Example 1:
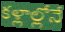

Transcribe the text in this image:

కళ్లాల్లోనే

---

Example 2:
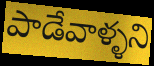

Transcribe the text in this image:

పాడేవాళ్ళని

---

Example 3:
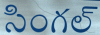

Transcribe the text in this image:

సింగల్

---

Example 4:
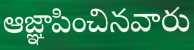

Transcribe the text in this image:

ఆజ్ఞాపించినవారు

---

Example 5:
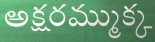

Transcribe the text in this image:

అక్షరమ్ముక్క